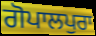
ਗੋਪਾਲਪੁਰਾ